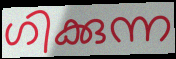
ഗിക്കുന്ന